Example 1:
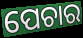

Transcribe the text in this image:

ପେଚାର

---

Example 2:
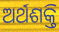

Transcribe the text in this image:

ଅର୍ଥଶକ୍ତି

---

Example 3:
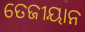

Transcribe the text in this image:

ତେଜୀୟାନ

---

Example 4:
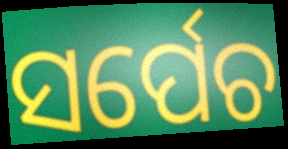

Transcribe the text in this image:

ସର୍ପେଚ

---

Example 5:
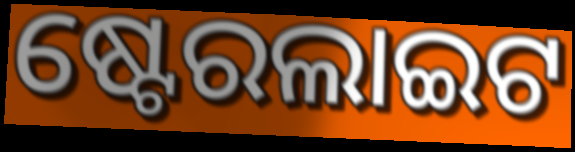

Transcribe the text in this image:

ଷ୍ଟେରଲାଇଟ